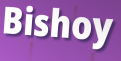
Bishoy